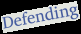
Defending